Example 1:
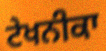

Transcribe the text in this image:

ਟੇਖਨੀਕਾ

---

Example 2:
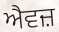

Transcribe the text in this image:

ਐਵਜ਼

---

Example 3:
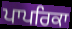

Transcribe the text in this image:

ਪਾਪਰਿਕਾ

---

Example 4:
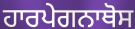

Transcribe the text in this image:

ਹਾਰਪੇਗਨਾਥੋਸ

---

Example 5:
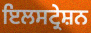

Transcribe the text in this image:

ਇਲਸਟ੍ਰੇਸ਼ਨ